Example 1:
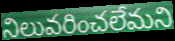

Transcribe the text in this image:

నిలువరించలేమని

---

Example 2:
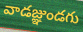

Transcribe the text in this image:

వాడజ్ఞుండగు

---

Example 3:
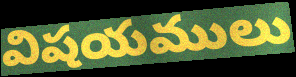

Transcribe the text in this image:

విషయములు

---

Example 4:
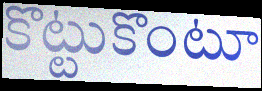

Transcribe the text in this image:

కొట్టుకొంటూ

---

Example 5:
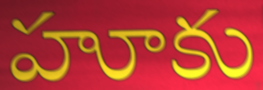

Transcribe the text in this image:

హూకు